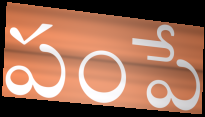
పంపే